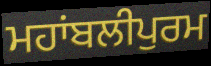
ਮਹਾਂਬਲੀਪੁਰਮ